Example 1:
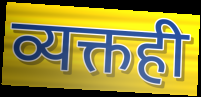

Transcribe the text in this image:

व्यक्तही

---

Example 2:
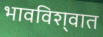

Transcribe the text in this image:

भावविश्वात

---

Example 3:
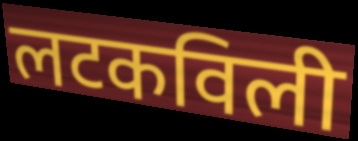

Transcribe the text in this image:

लटकविली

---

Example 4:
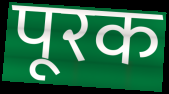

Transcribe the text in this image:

पूरक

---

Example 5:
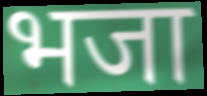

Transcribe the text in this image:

भजा